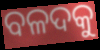
ବଳଦକୁ